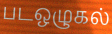
படஒழுகல்